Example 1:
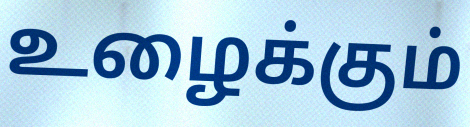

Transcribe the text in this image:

உழைக்கும்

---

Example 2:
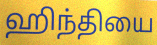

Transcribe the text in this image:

ஹிந்தியை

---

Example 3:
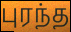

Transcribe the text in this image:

புரந்த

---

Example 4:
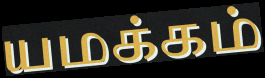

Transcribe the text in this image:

யமக்கம்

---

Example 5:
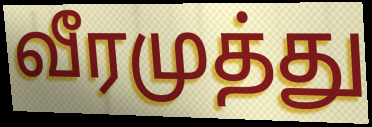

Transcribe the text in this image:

வீரமுத்து